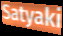
Satyaki